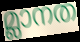
മ്ലാനത